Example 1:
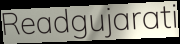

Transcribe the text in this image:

Readgujarati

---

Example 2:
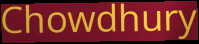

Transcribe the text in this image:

Chowdhury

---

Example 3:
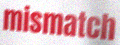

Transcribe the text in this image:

mismatch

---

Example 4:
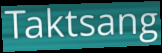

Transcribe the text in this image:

Taktsang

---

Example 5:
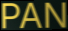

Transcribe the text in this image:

PAN